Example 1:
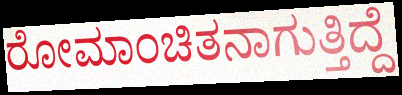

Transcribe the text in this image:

ರೋಮಾಂಚಿತನಾಗುತ್ತಿದ್ದೆ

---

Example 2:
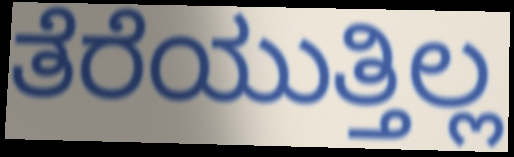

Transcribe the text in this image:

ತೆರೆಯುತ್ತಿಲ್ಲ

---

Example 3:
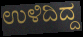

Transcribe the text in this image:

ಉಳಿದಿದ್ದ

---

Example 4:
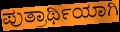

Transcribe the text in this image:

ಪುತ್ರಾರ್ಥಿಯಾಗಿ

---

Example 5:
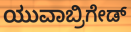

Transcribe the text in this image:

ಯುವಾಬ್ರಿಗೇಡ್